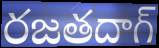
రజతదాగ్